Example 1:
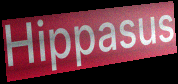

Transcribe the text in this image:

Hippasus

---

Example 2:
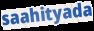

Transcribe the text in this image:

saahityada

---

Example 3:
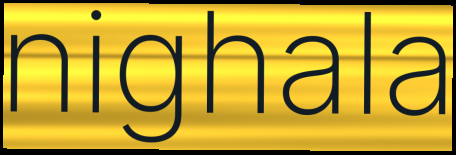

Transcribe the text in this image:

nighala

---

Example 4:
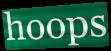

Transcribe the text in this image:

hoops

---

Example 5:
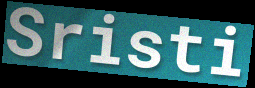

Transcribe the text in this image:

Sristi